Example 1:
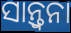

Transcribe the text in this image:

ସାନ୍ତ୍ଵନା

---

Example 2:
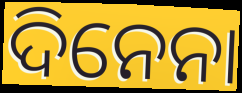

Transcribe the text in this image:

ଦିନେନା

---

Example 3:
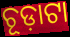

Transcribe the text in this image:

ଚୂଡ଼ାଟା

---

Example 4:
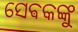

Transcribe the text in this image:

ସେଵକଙ୍କୁ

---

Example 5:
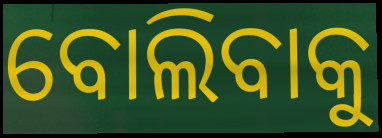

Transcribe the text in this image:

ବୋଲିବାକୁ